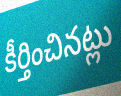
కీర్తించినట్లు